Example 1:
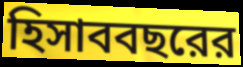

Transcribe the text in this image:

হিসাববছরের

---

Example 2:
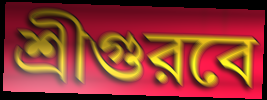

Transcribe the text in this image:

শ্রীগুরবে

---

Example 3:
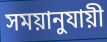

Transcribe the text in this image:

সময়ানুযায়ী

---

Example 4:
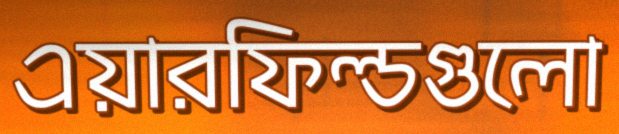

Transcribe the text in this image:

এয়ারফিল্ডগুলো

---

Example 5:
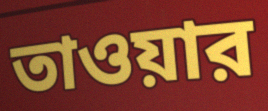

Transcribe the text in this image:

তাওয়ার